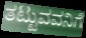
ತಟ್ಟುವವನಿಗೆ